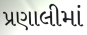
પ્રણાલીમાં